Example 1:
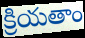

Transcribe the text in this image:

క్రియతాం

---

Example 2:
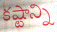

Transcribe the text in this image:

కష్టాన్ని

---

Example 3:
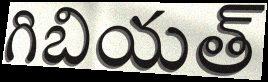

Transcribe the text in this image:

గిబియత్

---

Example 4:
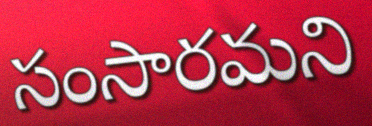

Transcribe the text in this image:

సంసారమని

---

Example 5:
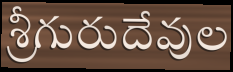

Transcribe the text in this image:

శ్రీగురుదేవుల